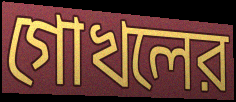
গোখলের